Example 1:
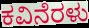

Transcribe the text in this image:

ಕವಿನೆರಳು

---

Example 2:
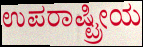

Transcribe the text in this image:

ಉಪರಾಷ್ಟ್ರೀಯ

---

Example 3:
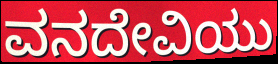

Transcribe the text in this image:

ವನದೇವಿಯು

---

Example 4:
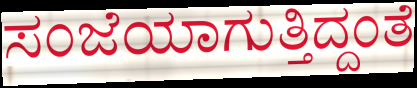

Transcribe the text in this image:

ಸಂಜೆಯಾಗುತ್ತಿದ್ದಂತೆ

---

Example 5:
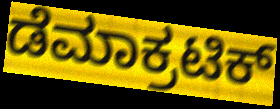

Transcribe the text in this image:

ಡೆಮಾಕ್ರಟಿಕ್